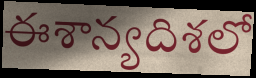
ఈశాన్యదిశలో